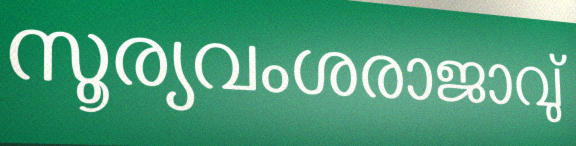
സൂര്യവംശരാജാവു്